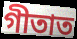
গীতাত